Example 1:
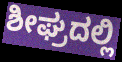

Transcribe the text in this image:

ಶೀಘ್ರದಲ್ಲಿ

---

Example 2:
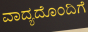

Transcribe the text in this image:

ವಾದ್ಯದೊಂದಿಗೆ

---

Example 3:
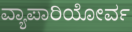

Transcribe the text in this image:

ವ್ಯಾಪಾರಿಯೋರ್ವ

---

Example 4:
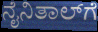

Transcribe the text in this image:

ನೈನಿತಾಲ್‌ಗೆ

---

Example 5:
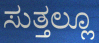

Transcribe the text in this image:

ಸುತ್ತಲ್ಲೂ